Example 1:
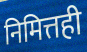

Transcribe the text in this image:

निमित्तही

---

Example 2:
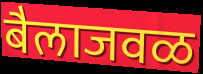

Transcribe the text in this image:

बैलाजवळ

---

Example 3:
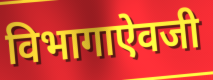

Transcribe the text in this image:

विभागाऐवजी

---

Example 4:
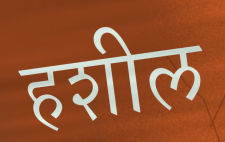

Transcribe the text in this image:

हशील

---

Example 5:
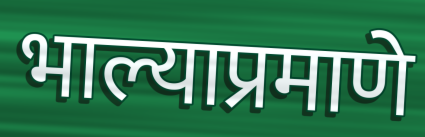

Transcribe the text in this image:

भाल्याप्रमाणे